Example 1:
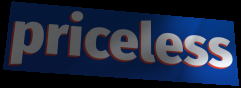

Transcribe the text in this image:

priceless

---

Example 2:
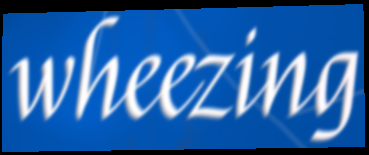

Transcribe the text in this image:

wheezing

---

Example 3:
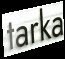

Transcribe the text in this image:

tarka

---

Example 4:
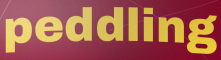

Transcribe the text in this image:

peddling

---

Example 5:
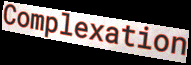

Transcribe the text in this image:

Complexation